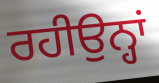
ਰਹੀਉਨ੍ਹਾਂ